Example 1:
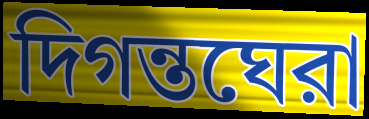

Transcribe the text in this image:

দিগন্তঘেরা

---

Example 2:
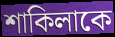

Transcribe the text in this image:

শাকিলাকে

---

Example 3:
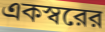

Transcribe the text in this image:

একস্বরের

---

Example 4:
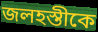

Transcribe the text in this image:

জলহস্তীকে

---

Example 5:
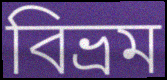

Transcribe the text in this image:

বিভ্রম